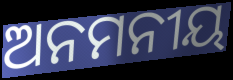
ଅନମନୀୟ